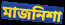
মাজনিশা